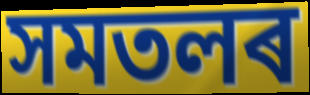
সমতলৰ